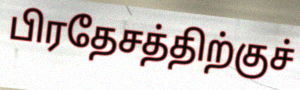
பிரதேசத்திற்குச்